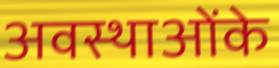
अवस्थाओंके